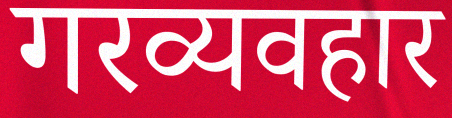
गरव्यवहार